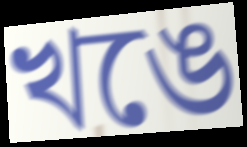
খঙে